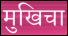
मुखिचा